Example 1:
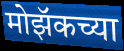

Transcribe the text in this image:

मोझॅकच्या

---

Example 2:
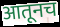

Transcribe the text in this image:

आतूनच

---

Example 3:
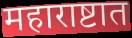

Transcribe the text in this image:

महाराष्टात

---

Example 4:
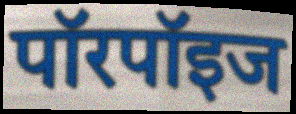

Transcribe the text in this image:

पॉरपॉइज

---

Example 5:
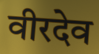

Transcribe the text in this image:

वीरदेव